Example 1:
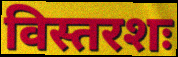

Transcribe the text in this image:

विस्तरशः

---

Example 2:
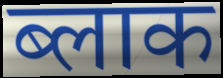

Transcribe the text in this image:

ब्लाक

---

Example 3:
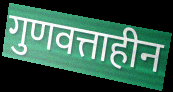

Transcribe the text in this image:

गुणवत्ताहीन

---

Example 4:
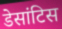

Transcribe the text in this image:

डेसांटिस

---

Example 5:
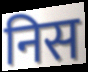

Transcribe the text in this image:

निस